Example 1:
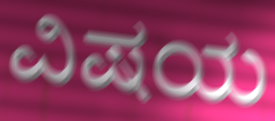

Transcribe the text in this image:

ವಿಷಯ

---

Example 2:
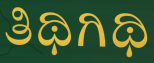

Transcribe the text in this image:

ತಿಥಿಗಿಥಿ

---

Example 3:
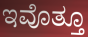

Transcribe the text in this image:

ಇವೊತ್ತೂ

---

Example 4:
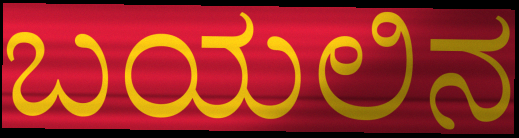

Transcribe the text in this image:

ಬಯಲಿನ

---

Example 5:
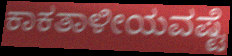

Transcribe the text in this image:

ಕಾಕತಾಳೀಯವಷ್ಟೆ